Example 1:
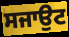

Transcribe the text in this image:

ਸਜਾਉਟ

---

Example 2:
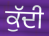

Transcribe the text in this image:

ਕੁੱਦੀ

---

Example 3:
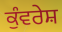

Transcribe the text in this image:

ਕੁੰਵਰੇਸ਼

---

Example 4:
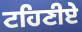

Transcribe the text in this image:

ਟਹਿਣੀਏ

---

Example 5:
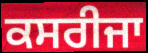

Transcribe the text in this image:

ਕਸਰੀਜਾ